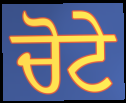
ਚੋਟੇ